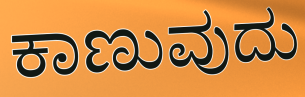
ಕಾಣುವುದು